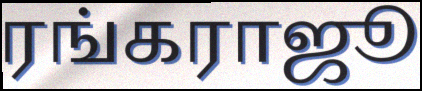
ரங்கராஜூ